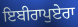
ਇਬੀਰਾਪੁਏਰਾ